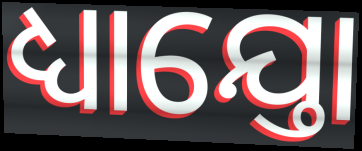
ଧ୍ୟାଯ୍ତୋ